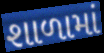
શાળામાં